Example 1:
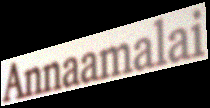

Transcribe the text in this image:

Annaamalai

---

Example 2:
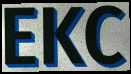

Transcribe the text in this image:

EKC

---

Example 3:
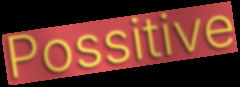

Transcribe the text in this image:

Possitive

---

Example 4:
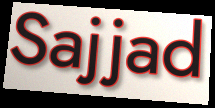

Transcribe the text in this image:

Sajjad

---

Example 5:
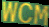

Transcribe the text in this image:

WCM